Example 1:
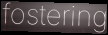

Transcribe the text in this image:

fostering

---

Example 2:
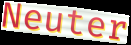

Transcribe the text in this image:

Neuter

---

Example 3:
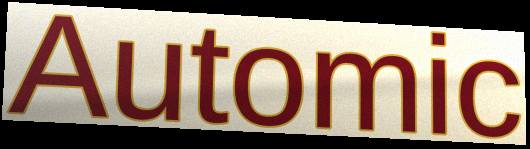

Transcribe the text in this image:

Automic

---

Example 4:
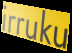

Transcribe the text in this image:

irruku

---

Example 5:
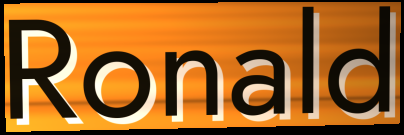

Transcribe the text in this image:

Ronald